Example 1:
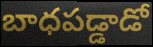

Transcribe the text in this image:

బాధపడ్డాడో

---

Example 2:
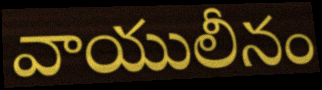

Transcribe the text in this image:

వాయులీనం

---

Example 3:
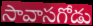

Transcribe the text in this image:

సావాసగోడు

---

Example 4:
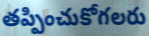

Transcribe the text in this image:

తప్పించుకోగలరు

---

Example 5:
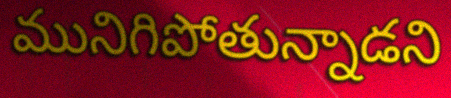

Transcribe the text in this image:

మునిగిపోతున్నాడని